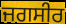
ਜਗਸੀਰ